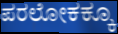
ಪರಲೋಕಕ್ಕೂ